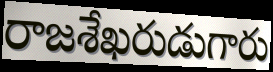
రాజశేఖరుడుగారు